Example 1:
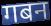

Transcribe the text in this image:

गबन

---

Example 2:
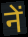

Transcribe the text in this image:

नें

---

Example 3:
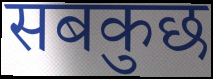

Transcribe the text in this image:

सबकुछ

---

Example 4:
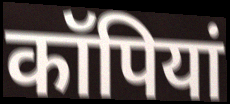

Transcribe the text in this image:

कॉपियां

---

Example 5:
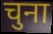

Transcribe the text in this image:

चुना